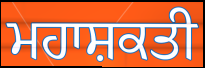
ਮਹਾਸ਼ਕਤੀ